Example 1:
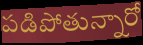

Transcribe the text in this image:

పడిపోతున్నారో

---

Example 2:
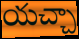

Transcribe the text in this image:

యచ్చా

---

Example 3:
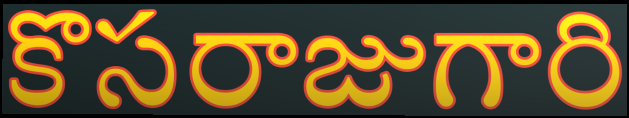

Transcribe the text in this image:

కొసరాజుగారి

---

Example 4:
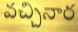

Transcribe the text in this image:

వచ్చినార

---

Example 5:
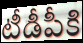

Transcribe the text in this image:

టీడీపీకి